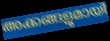
അക്കങ്ങളുമായി